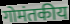
गोमंतकीय